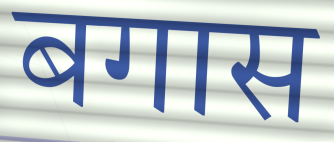
बगास